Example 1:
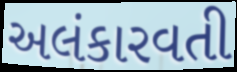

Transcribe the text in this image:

અલંકારવતી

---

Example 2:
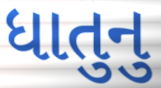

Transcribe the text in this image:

ધાતુનુ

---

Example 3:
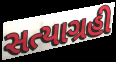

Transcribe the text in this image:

સત્યાગ્રહી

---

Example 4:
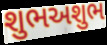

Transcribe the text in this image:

શુભઅશુભ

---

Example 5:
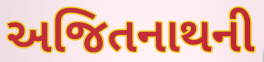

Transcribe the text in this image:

અજિતનાથની